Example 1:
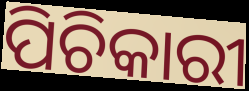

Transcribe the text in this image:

ପିଚିକାରୀ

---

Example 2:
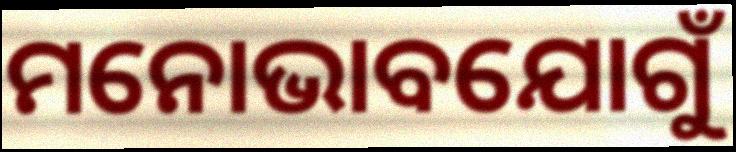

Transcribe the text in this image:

ମନୋଭାବଯୋଗୁଁ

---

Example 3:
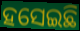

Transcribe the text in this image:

ହସେଇଛି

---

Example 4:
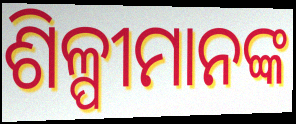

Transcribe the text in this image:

ଶିଳ୍ପୀମାନଙ୍କ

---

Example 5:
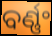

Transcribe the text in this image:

ବର୍ଣ୍ଣଂ